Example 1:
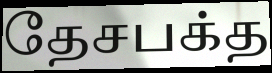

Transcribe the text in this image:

தேசபக்த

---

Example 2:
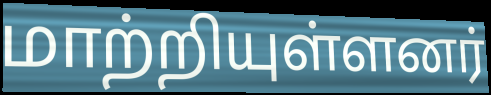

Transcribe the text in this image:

மாற்றியுள்ளனர்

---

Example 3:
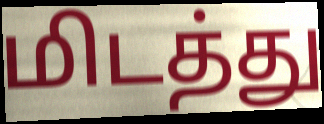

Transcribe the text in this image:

மிடத்து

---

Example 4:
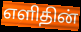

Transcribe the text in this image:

எளிதின்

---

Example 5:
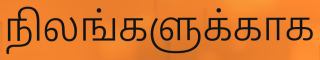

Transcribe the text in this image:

நிலங்களுக்காக